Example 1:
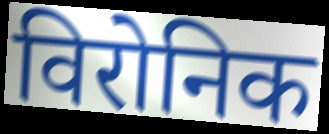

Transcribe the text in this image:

विरोनिक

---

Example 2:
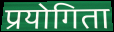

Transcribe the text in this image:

प्रयोगिता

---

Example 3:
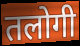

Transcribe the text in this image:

तलोगी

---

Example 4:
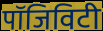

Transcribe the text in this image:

पॉजिविटी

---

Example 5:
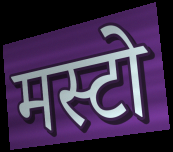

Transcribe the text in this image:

मस्टो